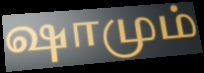
ஷாமும்